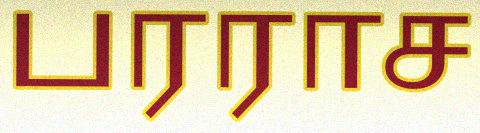
பரராச